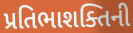
પ્રતિભાશક્તિની